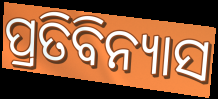
ପ୍ରତିବିନ୍ୟାସ